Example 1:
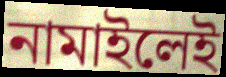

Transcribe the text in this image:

নামাইলেই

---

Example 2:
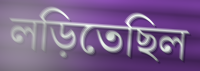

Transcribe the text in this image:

লড়িতেছিল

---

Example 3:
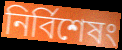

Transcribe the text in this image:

নির্বিশেষং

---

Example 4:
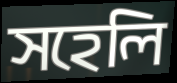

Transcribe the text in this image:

সহেলি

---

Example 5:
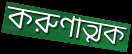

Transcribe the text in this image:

করুণাত্মক